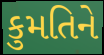
કુમતિને